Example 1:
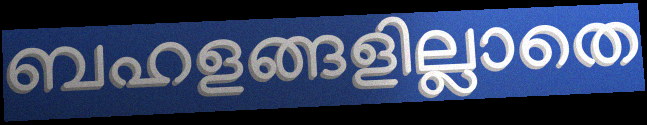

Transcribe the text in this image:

ബഹളങ്ങളില്ലാതെ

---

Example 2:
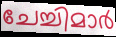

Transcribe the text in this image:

ചേച്ചിമാർ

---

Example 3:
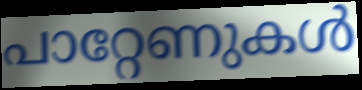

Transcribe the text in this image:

പാറ്റേണുകൾ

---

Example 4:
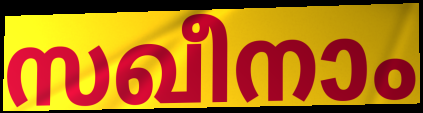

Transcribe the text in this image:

സഖീനാം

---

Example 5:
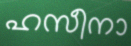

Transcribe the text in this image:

ഹസീനാ